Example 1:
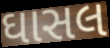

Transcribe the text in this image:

ઘાસલ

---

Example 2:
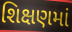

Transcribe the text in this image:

શિક્ષણમાં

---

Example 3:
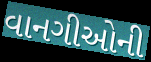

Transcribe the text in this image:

વાનગીઓની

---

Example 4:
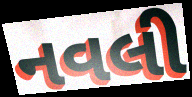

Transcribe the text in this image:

નવલી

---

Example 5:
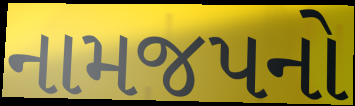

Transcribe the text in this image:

નામજપનો